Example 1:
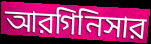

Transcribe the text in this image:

আরগিনিসার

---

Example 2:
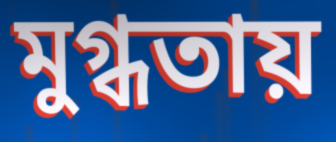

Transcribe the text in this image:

মুগ্ধতায়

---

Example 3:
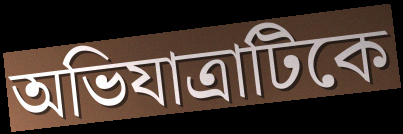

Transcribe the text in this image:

অভিযাত্রাটিকে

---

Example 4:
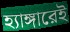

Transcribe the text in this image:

হ্যাঙ্গারেই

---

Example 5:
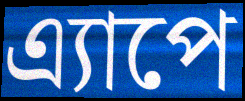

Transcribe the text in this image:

এ্যাপে